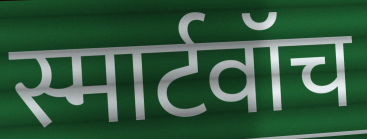
स्मार्टवॉच